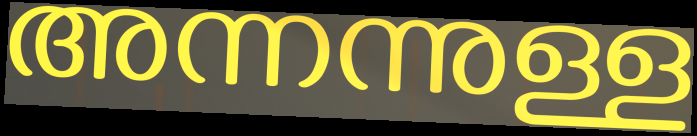
അന്നന്നുള്ള